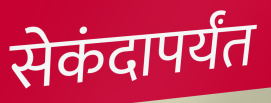
सेकंदापर्यंत